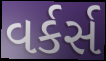
વર્કર્સ